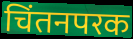
चिंतनपरक